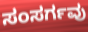
ಸಂಸರ್ಗವು